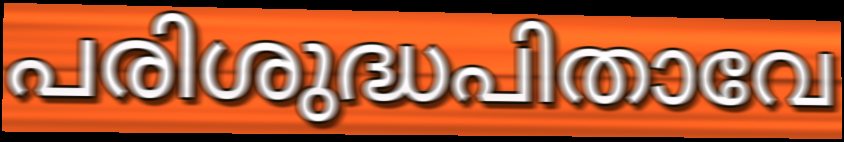
പരിശുദ്ധപിതാവേ